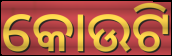
କୋଉଟି